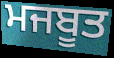
ਮਜਬੂਤ